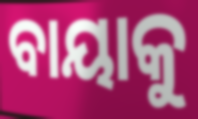
ବାୟାକୁ